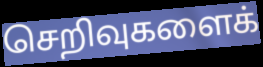
செறிவுகளைக்